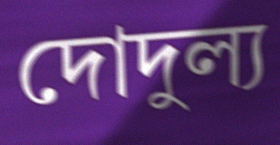
দোদুল্য